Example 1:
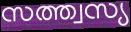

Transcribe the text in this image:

സത്ത്വസ്യ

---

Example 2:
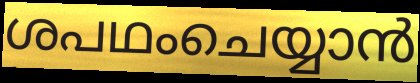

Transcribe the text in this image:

ശപഥംചെയ്യാൻ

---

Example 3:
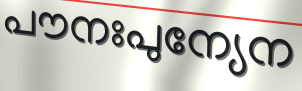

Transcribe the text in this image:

പൗനഃപുന്യേന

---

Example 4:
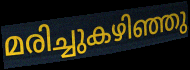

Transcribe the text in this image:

മരിച്ചുകഴിഞ്ഞു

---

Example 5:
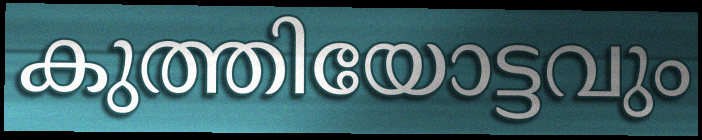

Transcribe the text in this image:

കുത്തിയോട്ടവും